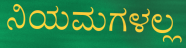
ನಿಯಮಗಳಲ್ಲ